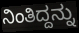
ನಿಂತಿದ್ದನ್ನು